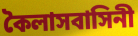
কৈলাসবাসিনী